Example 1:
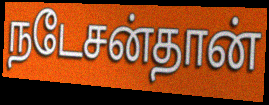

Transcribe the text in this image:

நடேசன்தான்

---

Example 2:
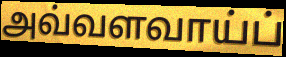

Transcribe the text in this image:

அவ்வளவாய்ப்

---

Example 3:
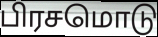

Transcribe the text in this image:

பிரசமொடு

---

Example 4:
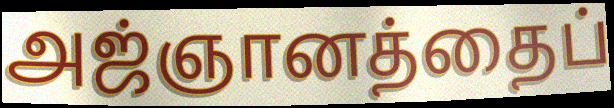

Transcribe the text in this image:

அஜ்ஞானத்தைப்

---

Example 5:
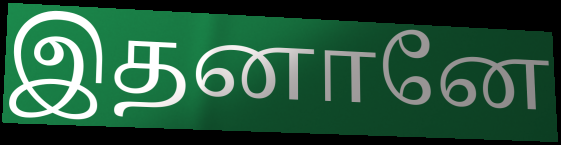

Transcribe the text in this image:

இதனானே